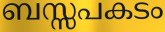
ബസ്സപകടം